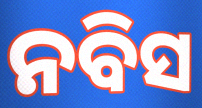
ନବିସ